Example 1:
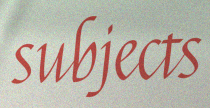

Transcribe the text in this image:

subjects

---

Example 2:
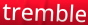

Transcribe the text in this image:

tremble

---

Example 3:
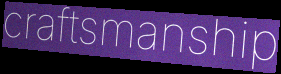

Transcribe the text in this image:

craftsmanship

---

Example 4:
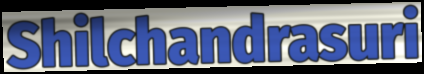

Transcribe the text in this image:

Shilchandrasuri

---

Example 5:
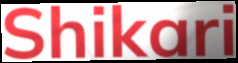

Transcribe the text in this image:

Shikari